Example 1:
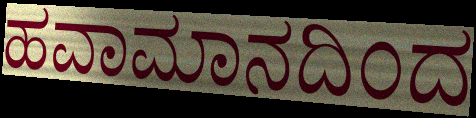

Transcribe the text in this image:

ಹವಾಮಾನದಿಂದ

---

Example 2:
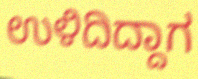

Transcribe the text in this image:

ಉಳಿದಿದ್ದಾಗ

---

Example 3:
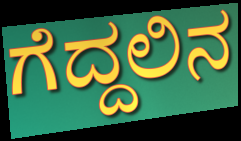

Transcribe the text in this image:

ಗೆದ್ದಲಿನ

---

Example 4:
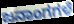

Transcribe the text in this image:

ಜನಾಂಗಗಳೆ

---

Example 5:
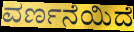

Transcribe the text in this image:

ವರ್ಣನೆಯಿದೆ